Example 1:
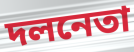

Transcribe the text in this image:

দলনেতা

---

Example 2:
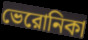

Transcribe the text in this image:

ভেরোনিকা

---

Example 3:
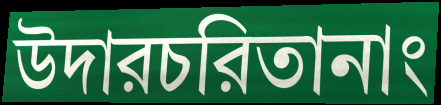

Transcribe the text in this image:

উদারচরিতানাং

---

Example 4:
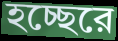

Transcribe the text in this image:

হচ্ছেরে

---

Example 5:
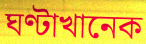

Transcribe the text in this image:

ঘণ্টাখানেক